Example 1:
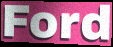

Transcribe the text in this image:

Ford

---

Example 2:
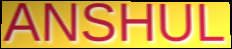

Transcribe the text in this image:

ANSHUL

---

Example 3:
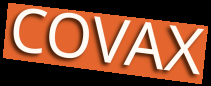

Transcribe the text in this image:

COVAX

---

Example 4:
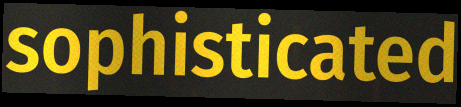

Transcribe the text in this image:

sophisticated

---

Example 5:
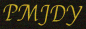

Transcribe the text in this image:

PMJDY